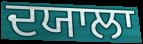
ਦਯਾਲਾ